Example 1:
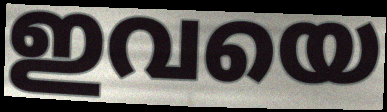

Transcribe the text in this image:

ഇവയെ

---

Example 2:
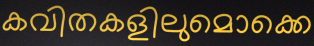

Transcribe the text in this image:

കവിതകളിലുമൊക്കെ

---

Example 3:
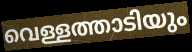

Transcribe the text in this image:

വെള്ളത്താടിയും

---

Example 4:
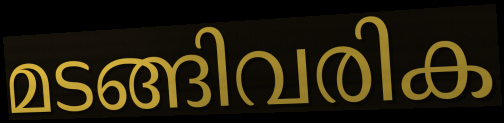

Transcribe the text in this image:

മടങ്ങിവരിക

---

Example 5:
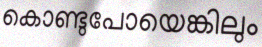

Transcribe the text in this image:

കൊണ്ടുപോയെങ്കിലും